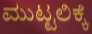
ಮುಟ್ಟಲಿಕ್ಕೆ